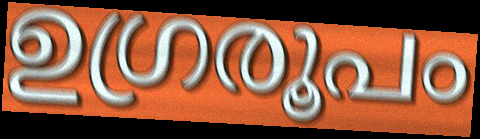
ഉഗ്രരൂപം